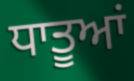
ਧਾਤੂਆਂ